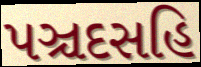
પઞ્ચદસહિ